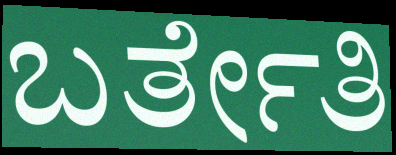
ಬರ್ತೇತಿ